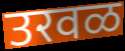
उरवळ